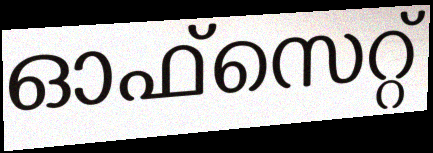
ഓഫ്സെറ്റ്